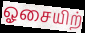
ஓசையிற்